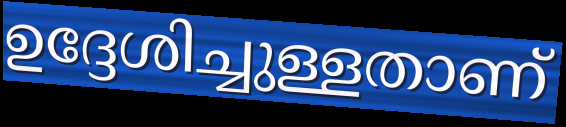
ഉദ്ദേശിച്ചുള്ളതാണ്